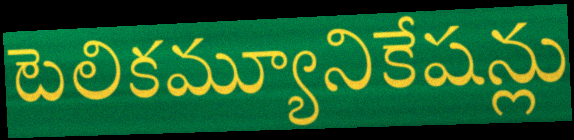
టెలికమ్యూనికేషన్లు